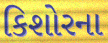
કિશોરના